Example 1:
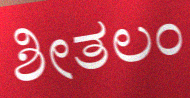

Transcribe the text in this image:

ಶೀತಲಂ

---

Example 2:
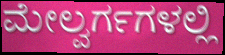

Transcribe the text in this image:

ಮೇಲ್ವರ್ಗಗಳಲ್ಲಿ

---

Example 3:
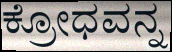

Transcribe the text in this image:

ಕ್ರೋಧವನ್ನ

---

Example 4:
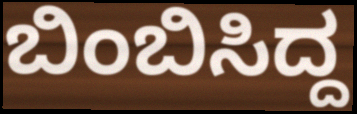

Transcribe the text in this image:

ಬಿಂಬಿಸಿದ್ದ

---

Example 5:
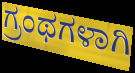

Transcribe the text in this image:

ಗ್ರಂಥಗಳಾಗಿ